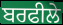
ਬਰਫੀਲੇ